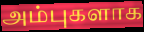
அம்புகளாக